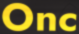
Onc